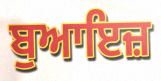
ਬੁਆਇਜ਼